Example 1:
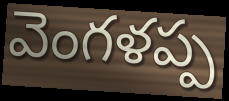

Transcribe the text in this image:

వెంగళప్ప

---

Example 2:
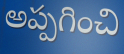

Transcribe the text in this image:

అప్పగించి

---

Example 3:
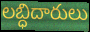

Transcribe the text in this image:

లబ్ధిదారులు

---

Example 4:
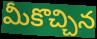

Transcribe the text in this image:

మీకొచ్చిన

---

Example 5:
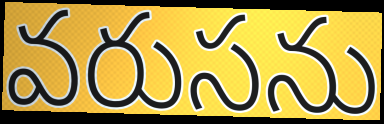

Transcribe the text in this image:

వరుసను